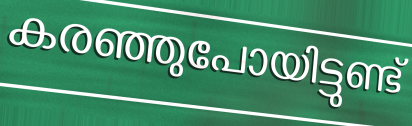
കരഞ്ഞുപോയിട്ടുണ്ട്